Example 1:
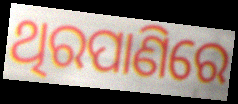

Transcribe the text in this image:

ଥିରପାଣିରେ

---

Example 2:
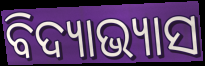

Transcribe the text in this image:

ବିଦ୍ୟାଭ୍ୟାସ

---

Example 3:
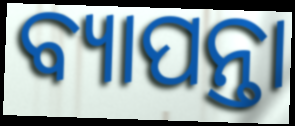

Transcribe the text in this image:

ବ୍ୟାପନ୍ତା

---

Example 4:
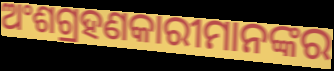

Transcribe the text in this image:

ଅଂଶଗ୍ରହଣକାରୀମାନଙ୍କର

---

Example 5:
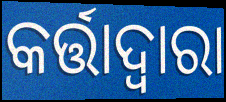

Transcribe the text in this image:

କର୍ତ୍ତାଦ୍ଵାରା